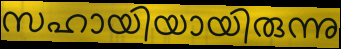
സഹായിയായിരുന്നു